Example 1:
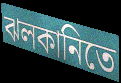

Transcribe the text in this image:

ঝলকানিতে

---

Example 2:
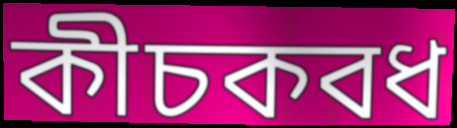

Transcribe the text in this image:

কীচকবধ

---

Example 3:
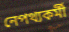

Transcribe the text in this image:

নেপথ্যকর্মী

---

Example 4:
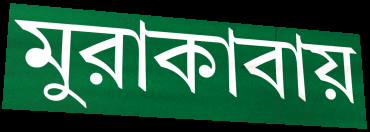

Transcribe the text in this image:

মুরাকাবায়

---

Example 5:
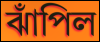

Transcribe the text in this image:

ঝাঁপিল